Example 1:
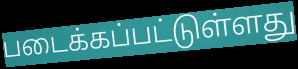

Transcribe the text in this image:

படைக்கப்பட்டுள்ளது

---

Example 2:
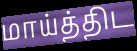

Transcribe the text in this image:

மாய்த்திட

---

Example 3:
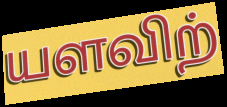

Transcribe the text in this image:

யளவிற்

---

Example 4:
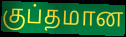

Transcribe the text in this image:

குப்தமான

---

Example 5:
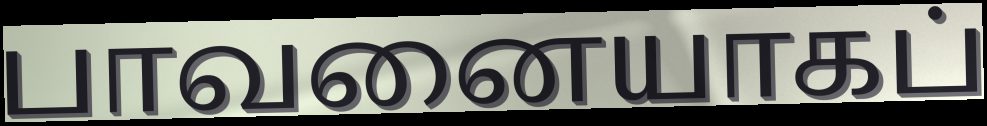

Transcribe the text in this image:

பாவனையாகப்